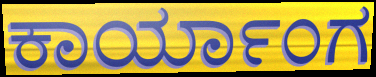
ಕಾರ್ಯಾಂಗ